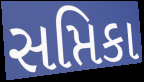
સપ્તિકા